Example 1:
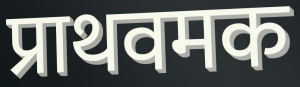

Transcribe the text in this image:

प्राथवमक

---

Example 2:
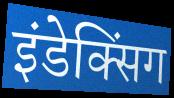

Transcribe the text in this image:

इंडेक्सिंग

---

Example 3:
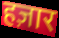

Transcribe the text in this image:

हज़ार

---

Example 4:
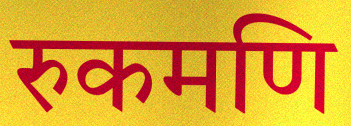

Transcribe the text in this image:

रुकमणि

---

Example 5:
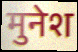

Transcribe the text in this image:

मुनेश